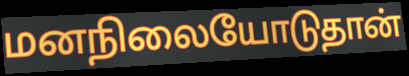
மனநிலையோடுதான்